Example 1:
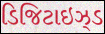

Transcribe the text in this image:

ડિજિટાઇઝ્ડ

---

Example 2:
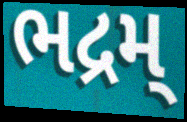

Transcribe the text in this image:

ભદ્રમ્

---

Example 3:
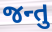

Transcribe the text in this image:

જન્તુ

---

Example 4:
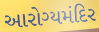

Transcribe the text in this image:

આરોગ્યમંદિર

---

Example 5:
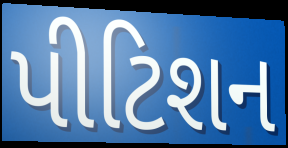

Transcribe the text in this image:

પીટિશન